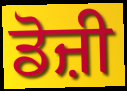
ਡੋਜ਼ੀ